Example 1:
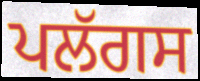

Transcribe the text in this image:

ਪਲੱਗਸ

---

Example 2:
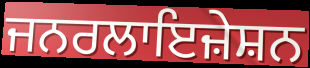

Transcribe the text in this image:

ਜਨਰਲਾਇਜ਼ੇਸ਼ਨ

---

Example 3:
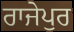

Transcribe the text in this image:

ਰਾਜੇਪੁਰ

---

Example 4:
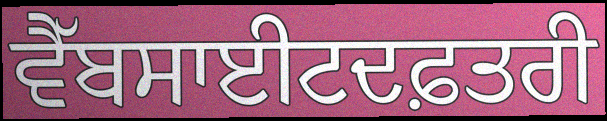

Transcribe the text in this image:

ਵੈੱਬਸਾਈਟਦਫ਼ਤਰੀ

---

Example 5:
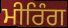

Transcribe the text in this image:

ਮੀਰਿੰਗ